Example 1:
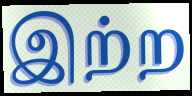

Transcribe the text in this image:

இற்ற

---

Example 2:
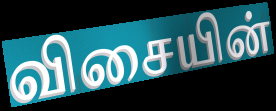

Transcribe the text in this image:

விசையின்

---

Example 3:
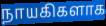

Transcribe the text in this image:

நாயகிகளாக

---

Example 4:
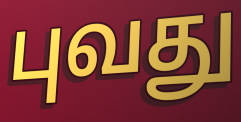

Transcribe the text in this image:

புவது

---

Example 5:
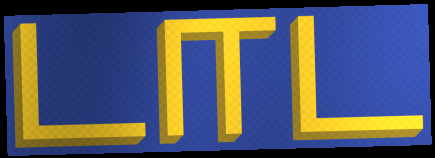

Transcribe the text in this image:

டாட